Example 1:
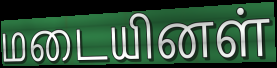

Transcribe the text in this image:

மடையினள்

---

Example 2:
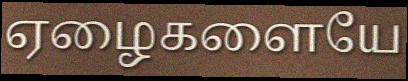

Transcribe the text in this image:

ஏழைகளையே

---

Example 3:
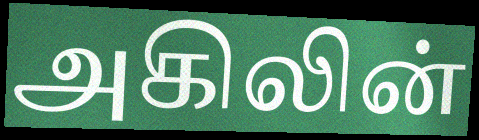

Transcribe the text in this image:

அகிலின்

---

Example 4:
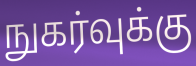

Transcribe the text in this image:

நுகர்வுக்கு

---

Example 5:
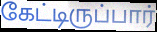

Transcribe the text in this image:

கேட்டிருப்பார்